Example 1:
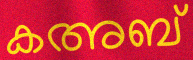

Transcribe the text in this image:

കഅബ്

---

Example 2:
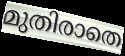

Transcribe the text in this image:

മുതിരാതെ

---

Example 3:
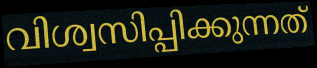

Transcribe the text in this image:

വിശ്വസിപ്പിക്കുന്നത്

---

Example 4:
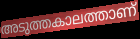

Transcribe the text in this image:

അടുത്തകാലത്താണ്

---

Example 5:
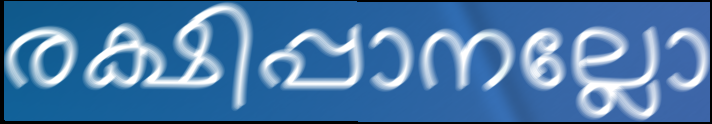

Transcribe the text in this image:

രക്ഷിപ്പാനല്ലോ